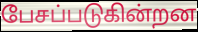
பேசப்படுகின்றன